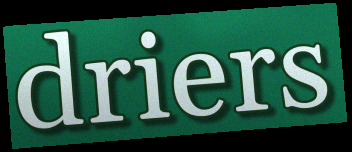
driers